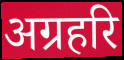
अग्रहरि